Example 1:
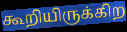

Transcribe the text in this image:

கூறியிருக்கிற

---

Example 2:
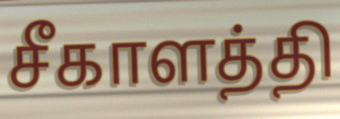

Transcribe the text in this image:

சீகாளத்தி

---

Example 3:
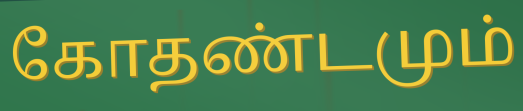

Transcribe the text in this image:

கோதண்டமும்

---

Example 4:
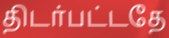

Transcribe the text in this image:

திடர்பட்டதே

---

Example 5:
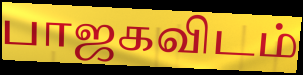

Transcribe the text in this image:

பாஜகவிடம்